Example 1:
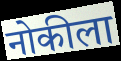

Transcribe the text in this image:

नोकीला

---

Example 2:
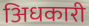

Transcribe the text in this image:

अिधकारी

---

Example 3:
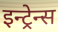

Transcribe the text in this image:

इन्ट्रेन्स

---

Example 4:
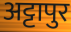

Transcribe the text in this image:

अट्टापुर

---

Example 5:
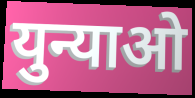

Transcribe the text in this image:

युन्याओ